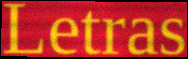
Letras